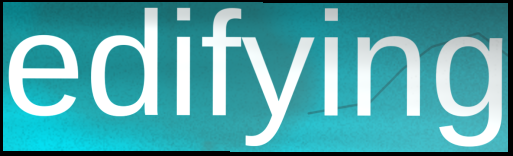
edifying